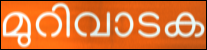
മുറിവാടക